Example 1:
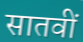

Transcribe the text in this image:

सातवीं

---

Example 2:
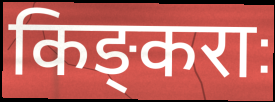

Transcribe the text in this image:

किङ्कराः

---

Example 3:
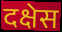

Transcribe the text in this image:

दक्षेस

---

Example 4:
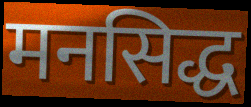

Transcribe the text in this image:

मनसिद्ध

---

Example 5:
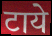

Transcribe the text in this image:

टाये